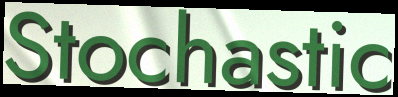
Stochastic